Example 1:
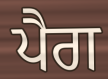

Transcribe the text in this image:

ਪੈਗ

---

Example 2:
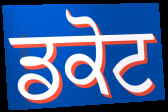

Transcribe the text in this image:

ਡਕੋਟ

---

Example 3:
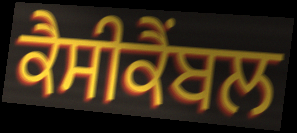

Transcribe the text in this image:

ਕੈਸੀਕੈਂਬਲ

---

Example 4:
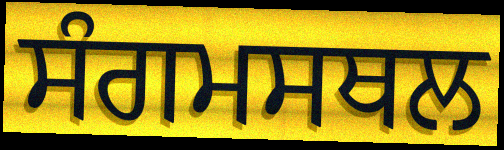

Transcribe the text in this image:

ਸੰਗਮਸਥਲ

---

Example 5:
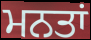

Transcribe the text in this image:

ਮਨਤਾਂ